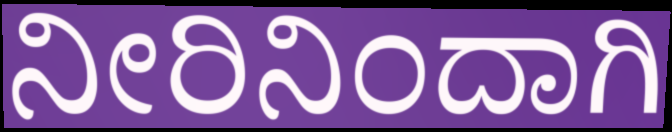
ನೀರಿನಿಂದಾಗಿ